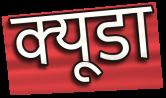
क्यूडा